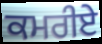
ਕਮਰੀਏ